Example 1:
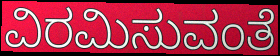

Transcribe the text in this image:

ವಿರಮಿಸುವಂತೆ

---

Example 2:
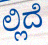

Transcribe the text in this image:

ಲ್ಲಿದೆ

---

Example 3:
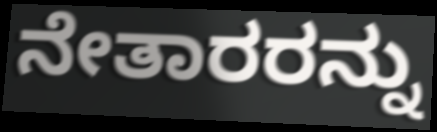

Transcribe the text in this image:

ನೇತಾರರನ್ನು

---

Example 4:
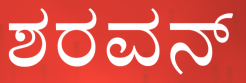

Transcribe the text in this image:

ಶರವನ್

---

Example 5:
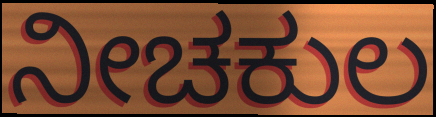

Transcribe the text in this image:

ನೀಚಕುಲ